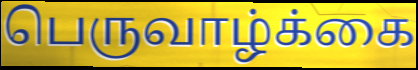
பெருவாழ்க்கை